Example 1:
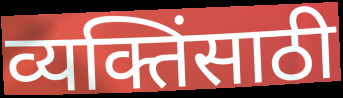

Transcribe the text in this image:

व्यक्तिंसाठी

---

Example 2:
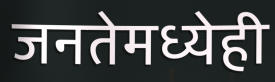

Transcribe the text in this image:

जनतेमध्येही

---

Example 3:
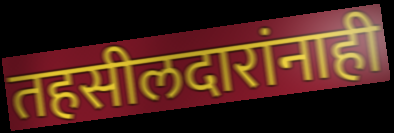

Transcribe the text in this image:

तहसीलदारांनाही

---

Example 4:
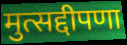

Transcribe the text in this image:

मुत्सद्दीपणा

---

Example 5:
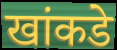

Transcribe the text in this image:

खांकडे